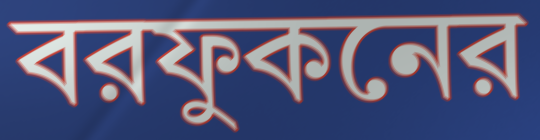
বরফুকনের